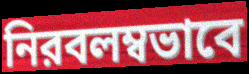
নিরবলম্বভাবে